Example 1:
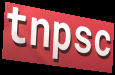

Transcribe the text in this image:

tnpsc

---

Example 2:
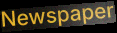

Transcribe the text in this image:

Newspaper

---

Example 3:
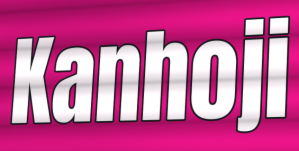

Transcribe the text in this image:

Kanhoji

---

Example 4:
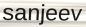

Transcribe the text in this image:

sanjeev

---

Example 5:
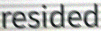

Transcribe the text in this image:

resided